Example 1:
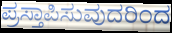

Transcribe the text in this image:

ಪ್ರಸ್ತಾಪಿಸುವುದರಿಂದ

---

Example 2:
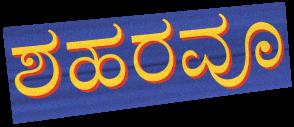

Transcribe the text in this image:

ಶಹರವೂ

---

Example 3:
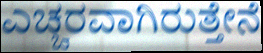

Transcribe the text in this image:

ಎಚ್ಚರವಾಗಿರುತ್ತೇನೆ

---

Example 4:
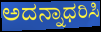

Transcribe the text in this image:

ಅದನ್ನಾಧರಿಸಿ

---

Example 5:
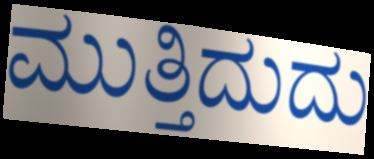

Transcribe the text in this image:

ಮುತ್ತಿದುದು